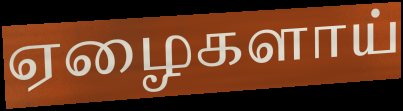
ஏழைகளாய்